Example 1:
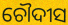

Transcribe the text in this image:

ଚୌଦୀସ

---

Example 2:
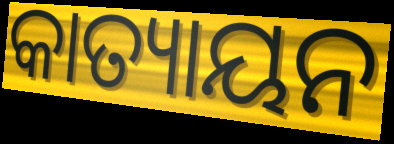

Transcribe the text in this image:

କାତ୍ୟାୟନ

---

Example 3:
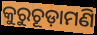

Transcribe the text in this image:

କୁରୁଚୂଡ଼ାମଣି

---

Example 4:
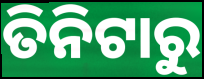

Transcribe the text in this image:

ତିନିଟାରୁ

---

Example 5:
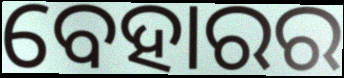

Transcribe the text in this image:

ବେହାରର